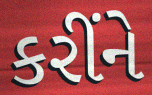
કરીંને